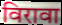
विरावा